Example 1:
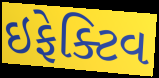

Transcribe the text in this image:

ઇફેક્ટિવ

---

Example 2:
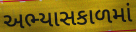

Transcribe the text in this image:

અભ્યાસકાળમાં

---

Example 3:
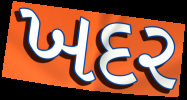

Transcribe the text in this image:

ખદર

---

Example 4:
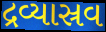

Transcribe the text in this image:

દ્રવ્યાસ્રવ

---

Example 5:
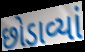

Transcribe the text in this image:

છોડાવ્યાં